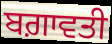
ਬਗ਼ਾਵਤੀ